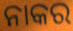
ନାକର